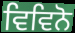
ਵਿਵਿਨੋ